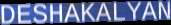
DESHAKALYAN